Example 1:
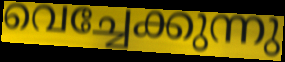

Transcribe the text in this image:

വെച്ചേക്കുന്നു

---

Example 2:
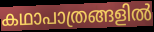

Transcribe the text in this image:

കഥാപാത്രങ്ങളിൽ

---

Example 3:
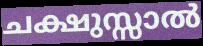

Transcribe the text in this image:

ചക്ഷുസ്സാൽ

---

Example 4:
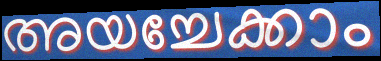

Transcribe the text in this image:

അയച്ചേക്കാം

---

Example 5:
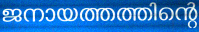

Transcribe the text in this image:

ജനായത്തത്തിന്റെ